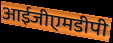
आईजीएमडीपी